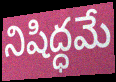
నిషిద్ధమే